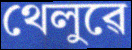
থেলুৱে